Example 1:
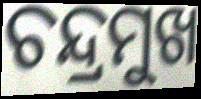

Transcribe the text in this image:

ଚନ୍ଦ୍ରମୁଖ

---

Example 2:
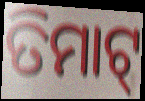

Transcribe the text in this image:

ତିମାଟ୍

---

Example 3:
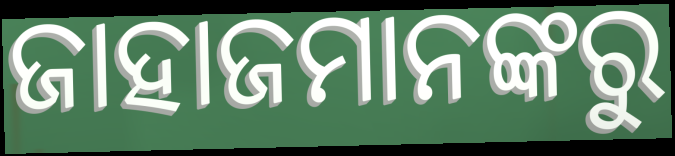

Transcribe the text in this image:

ଜାହାଜମାନଙ୍କରୁ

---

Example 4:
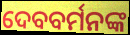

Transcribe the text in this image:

ଦେବବର୍ମନଙ୍କ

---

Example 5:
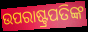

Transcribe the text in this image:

ଉପରାଷ୍ଟ୍ରପତିଙ୍କ